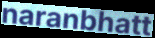
naranbhatt